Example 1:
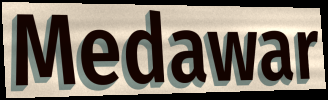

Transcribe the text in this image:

Medawar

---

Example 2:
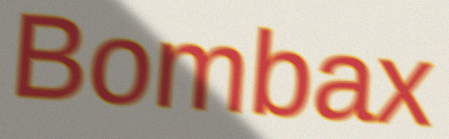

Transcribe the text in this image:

Bombax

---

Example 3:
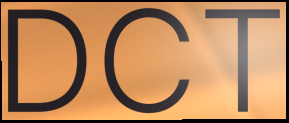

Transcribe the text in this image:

DCT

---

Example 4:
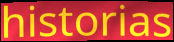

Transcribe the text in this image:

historias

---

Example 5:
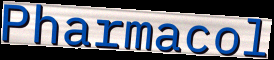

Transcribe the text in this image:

Pharmacol